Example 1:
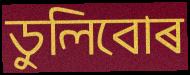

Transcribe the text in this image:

ডুলিবোৰ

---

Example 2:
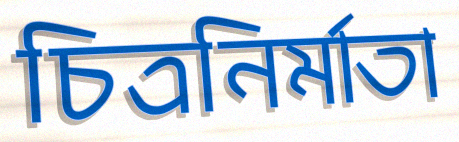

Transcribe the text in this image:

চিত্ৰনিৰ্মাতা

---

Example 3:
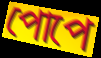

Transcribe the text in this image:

পোপে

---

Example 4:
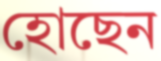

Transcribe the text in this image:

হোছেন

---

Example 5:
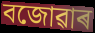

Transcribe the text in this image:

বজোৱাৰ